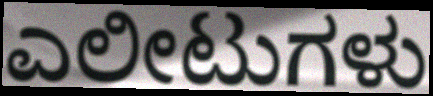
ಎಲೀಟುಗಳು